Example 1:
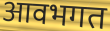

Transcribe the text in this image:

आवभगत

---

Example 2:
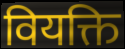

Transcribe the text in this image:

वियक्ति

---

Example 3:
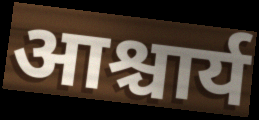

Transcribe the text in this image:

आश्चार्य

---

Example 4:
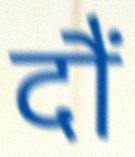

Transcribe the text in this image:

दौं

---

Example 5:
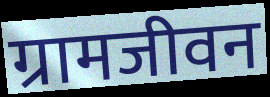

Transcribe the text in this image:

ग्रामजीवन